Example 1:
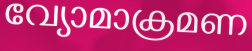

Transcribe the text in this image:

വ്യോമാക്രമണ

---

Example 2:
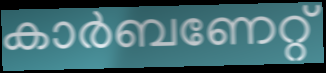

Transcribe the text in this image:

കാർബണേറ്റ്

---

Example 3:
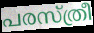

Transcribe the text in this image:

പരസ്ത്രീ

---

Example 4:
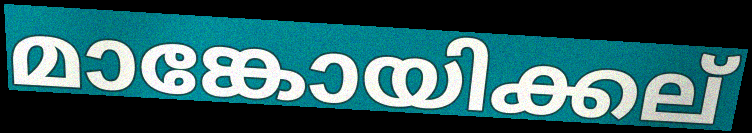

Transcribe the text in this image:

മാങ്കോയിക്കല്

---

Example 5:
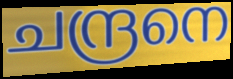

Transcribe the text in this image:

ചന്ദ്രനെ